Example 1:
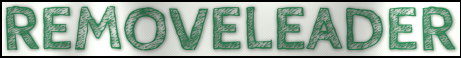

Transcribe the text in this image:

REMOVELEADER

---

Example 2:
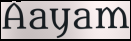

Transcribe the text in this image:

Aayam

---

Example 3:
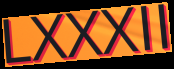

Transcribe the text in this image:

LXXXII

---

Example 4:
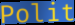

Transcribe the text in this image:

Polit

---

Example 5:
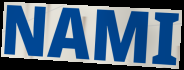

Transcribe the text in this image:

NAMI